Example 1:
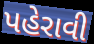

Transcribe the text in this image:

પહેરાવી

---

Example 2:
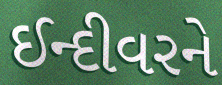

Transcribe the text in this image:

ઈન્દીવરને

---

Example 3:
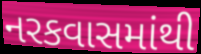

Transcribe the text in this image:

નરકવાસમાંથી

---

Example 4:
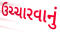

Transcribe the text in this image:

ઉચ્ચારવાનું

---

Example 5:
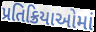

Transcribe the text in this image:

પ્રતિક્રિયાઓમાં